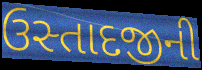
ઉસ્તાદજીની